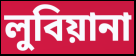
লুবিয়ানা